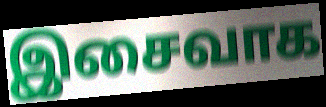
இசைவாக